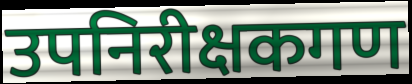
उपनिरीक्षकगण